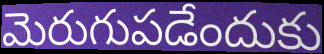
మెరుగుపడేందుకు